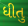
ધીતુ